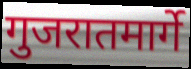
गुजरातमार्गे